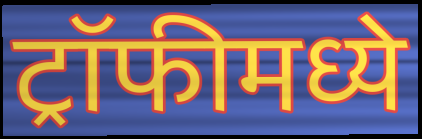
ट्रॉफीमध्ये